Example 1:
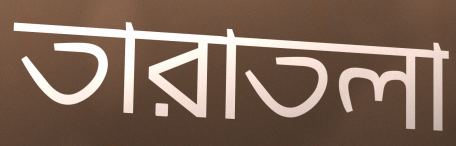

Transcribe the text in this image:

তারাতলা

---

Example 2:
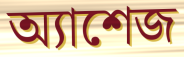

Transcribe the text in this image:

অ্যাশেজ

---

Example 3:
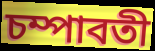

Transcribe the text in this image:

চম্পাবতী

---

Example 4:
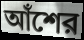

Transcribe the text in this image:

আঁশের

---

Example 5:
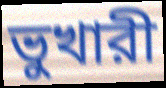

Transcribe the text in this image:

ভুখারী